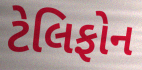
ટેલિફોન